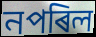
নপৰিল